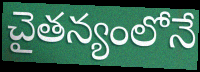
చైతన్యంలోనే